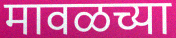
मावळच्या